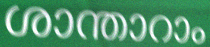
ശാന്താറാം